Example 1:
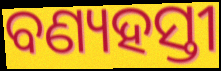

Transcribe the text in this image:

ବଣ୍ୟହସ୍ତୀ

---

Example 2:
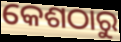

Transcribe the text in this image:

କେଶଠାରୁ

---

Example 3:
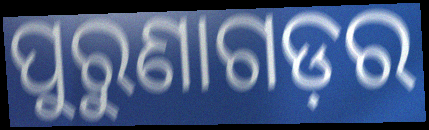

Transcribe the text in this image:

ପୁରୁଣାଗଡ଼ର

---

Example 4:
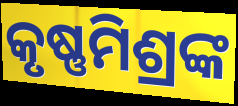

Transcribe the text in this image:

କୃଷ୍ଣମିଶ୍ରଙ୍କ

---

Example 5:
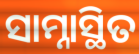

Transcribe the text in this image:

ସାମ୍ନାସ୍ଥିତ